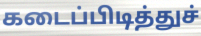
கடைப்பிடித்துச்